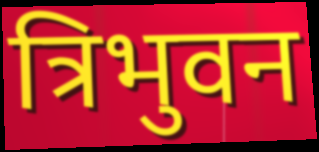
त्रिभुवन